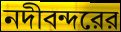
নদীবন্দরের